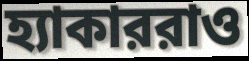
হ্যাকাররাও